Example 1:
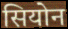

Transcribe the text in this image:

सियोन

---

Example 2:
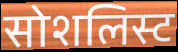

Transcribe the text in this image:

सोशलिस्ट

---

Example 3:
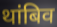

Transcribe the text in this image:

थांबिव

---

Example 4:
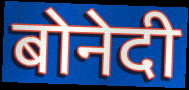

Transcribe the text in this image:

बोनेदी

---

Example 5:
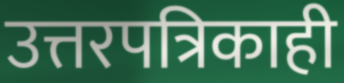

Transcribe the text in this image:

उत्तरपत्रिकाही